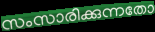
സംസാരിക്കുന്നതോ